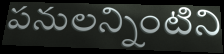
పనులన్నింటిని